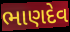
ભાણદેવ